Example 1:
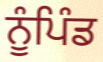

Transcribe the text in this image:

ਨੂੰਪਿੰਡ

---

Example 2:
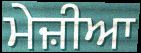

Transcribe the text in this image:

ਮੇਜ਼ੀਆ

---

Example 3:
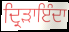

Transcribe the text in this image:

ਦ੍ਰਿੜਾਇੰਦਾ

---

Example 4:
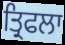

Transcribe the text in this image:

ਤ੍ਰਿਫਲਾ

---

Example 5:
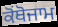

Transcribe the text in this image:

ਕੋਂਥੋਜਾਮ